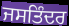
ਜਸਤਿੰਦਰ